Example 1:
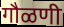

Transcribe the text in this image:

गौळणी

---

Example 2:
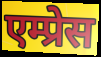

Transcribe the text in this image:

एम्प्रेस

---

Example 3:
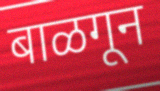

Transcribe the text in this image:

बाळगून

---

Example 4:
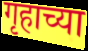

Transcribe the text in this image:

गृहाच्या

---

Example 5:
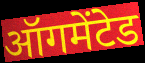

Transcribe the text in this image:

ऑगमेंटेड